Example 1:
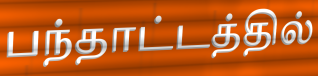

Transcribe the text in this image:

பந்தாட்டத்தில்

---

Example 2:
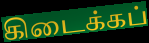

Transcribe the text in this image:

கிடைக்கப்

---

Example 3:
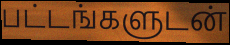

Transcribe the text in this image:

பட்டங்களுடன்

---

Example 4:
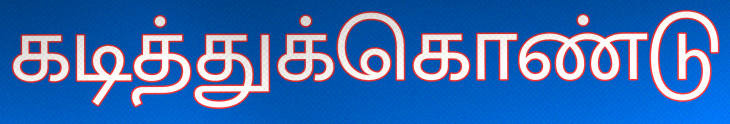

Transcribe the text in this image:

கடித்துக்கொண்டு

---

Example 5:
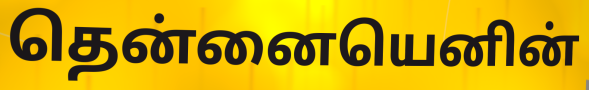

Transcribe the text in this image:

தென்னையெனின்